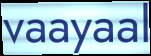
vaayaal